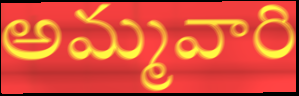
అమ్మవారి